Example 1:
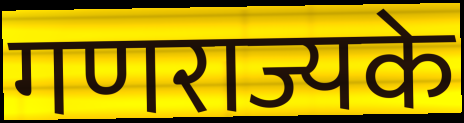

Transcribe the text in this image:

गणराज्यके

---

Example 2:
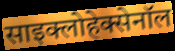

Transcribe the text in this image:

साइक्लोहेक्सेनॉल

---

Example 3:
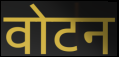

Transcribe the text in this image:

वोटन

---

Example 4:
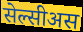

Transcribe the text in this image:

सेल्सीअस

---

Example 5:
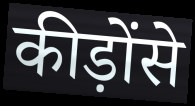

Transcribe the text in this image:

कीड़ोंसे